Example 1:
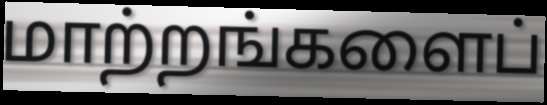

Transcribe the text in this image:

மாற்றங்களைப்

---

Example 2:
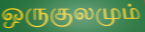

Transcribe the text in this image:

ஒருகுலமும்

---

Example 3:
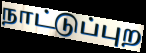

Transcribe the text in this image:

நாட்டுப்புற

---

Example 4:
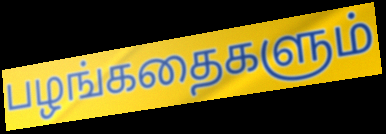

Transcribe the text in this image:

பழங்கதைகளும்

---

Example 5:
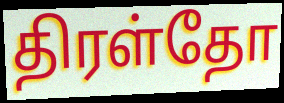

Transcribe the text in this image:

திரள்தோ